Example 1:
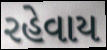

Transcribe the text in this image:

રહેવાય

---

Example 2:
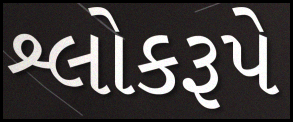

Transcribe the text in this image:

શ્લોકરૂપે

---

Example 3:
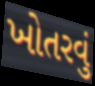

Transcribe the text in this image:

ખોતરવું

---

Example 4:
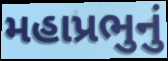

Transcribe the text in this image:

મહાપ્રભુનું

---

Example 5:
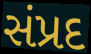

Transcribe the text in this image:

સંપ્રદ